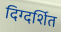
दिग्दर्शित